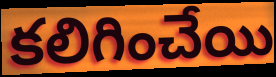
కలిగించేయి